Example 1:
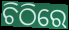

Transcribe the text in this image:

ଚିଠିରେ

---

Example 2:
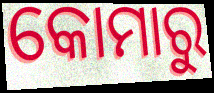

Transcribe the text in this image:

କୋମାରୁ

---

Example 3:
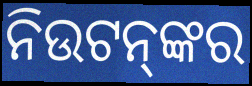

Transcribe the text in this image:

ନିଉଟନ୍‌ଙ୍କର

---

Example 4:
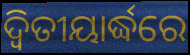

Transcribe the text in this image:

ଦ୍ବିତୀୟାର୍ଦ୍ଧରେ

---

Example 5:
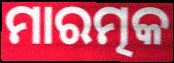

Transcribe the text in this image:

ମାରତ୍ମକ